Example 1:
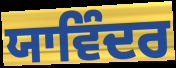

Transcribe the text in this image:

ਯਾਵਿੰਦਰ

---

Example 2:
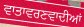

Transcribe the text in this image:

ਵਾਤਾਵਰਣਵਾਦੀਆਂ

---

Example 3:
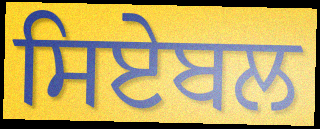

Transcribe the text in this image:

ਸਿਏਬਲ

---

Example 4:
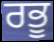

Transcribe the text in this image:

ਰਭੂ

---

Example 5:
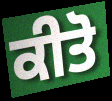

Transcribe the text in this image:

ਕੀਤੋ